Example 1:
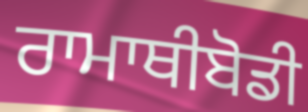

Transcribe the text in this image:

ਰਾਮਾਥੀਬੋਡੀ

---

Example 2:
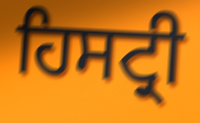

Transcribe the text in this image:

ਹਿਸਟ੍ਰੀ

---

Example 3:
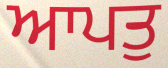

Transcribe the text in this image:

ਆਪਤੁ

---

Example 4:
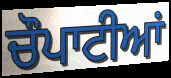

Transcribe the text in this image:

ਚੌਪਾਟੀਆਂ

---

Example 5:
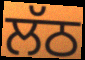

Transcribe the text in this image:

ਲੱਠ